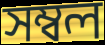
সম্বল